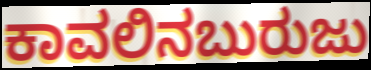
ಕಾವಲಿನಬುರುಜು